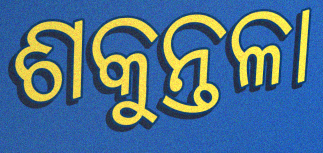
ଶକୁନ୍ତଳା